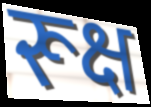
रूक्ष